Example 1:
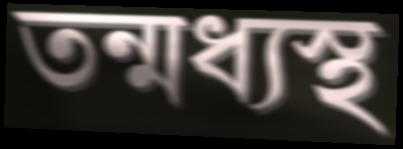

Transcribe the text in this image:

তন্মধ্যস্থ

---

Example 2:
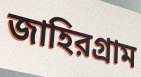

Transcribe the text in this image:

জাহিরগ্রাম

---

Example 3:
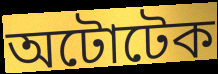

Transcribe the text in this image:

অটোটেক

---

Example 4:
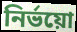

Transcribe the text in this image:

নির্ভয়ো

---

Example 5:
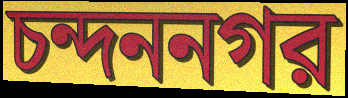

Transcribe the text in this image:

চন্দননগর